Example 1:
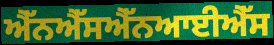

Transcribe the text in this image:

ਐੱਨਐੱਸਐੱਨਆਈਐੱਸ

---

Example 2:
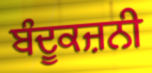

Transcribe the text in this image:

ਬੰਦੂਕਜ਼ਨੀ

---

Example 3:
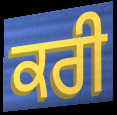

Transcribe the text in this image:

ਕਰੀ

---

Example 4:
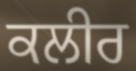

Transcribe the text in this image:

ਕਲੀਰ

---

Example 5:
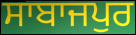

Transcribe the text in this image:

ਸਾਬਾਜਪੁਰ